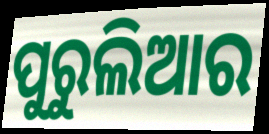
ପୁରୁଲିଆର